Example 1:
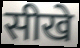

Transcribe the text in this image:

सीखे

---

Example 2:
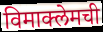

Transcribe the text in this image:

विमाक्लेमची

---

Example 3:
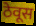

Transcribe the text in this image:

ठेवूस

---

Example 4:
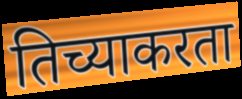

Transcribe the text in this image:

तिच्याकरता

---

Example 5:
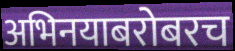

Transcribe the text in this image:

अभिनयाबरोबरच